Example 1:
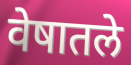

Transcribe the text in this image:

वेषातले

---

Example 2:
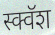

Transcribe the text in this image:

स्क्वॅश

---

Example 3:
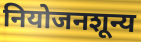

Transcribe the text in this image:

नियोजनशून्य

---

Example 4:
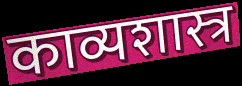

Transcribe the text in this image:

काव्यशास्त्र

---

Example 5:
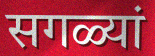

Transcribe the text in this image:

सगळ्यां